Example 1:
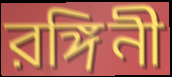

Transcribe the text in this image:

রঙ্গিনী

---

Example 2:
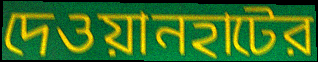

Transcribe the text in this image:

দেওয়ানহাটের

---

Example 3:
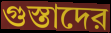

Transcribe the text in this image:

গুস্তাদের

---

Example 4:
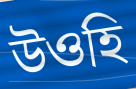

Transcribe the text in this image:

উওহি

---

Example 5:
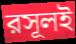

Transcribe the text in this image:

রসূলই